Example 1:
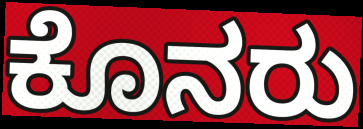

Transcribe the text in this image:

ಕೊನರು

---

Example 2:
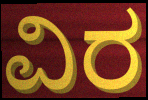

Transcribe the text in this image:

ವಿರ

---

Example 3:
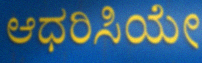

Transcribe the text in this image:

ಆಧರಿಸಿಯೇ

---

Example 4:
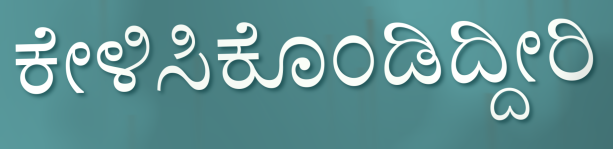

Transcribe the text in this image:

ಕೇಳಿಸಿಕೊಂಡಿದ್ದೀರಿ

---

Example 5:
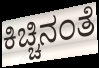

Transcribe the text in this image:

ಕಿಚ್ಚಿನಂತೆ